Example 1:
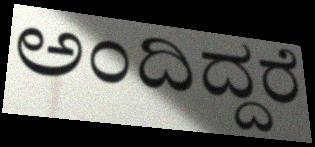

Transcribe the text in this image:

ಅಂದಿದ್ದರೆ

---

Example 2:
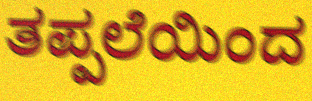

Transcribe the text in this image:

ತಪ್ಪಲೆಯಿಂದ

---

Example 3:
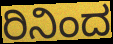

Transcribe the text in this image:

ರಿನಿಂದ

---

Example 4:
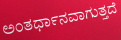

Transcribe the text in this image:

ಅಂತರ್ಧಾನವಾಗುತ್ತದೆ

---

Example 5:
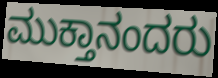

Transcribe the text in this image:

ಮುಕ್ತಾನಂದರು